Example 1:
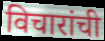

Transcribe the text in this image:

विचारांची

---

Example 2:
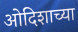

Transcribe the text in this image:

ओदिशाच्या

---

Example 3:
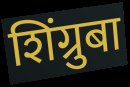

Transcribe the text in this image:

शिंग्रुबा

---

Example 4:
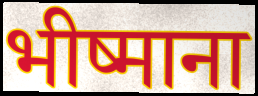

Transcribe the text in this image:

भीष्माना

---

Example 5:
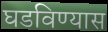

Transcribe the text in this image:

घडविण्यास